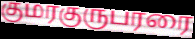
குமரகுருபரரை